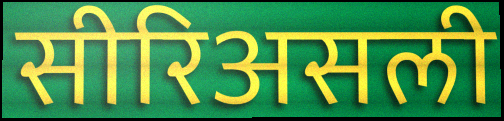
सीरिअसली